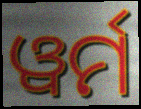
ୱର୍ମ